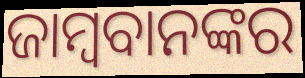
ଜାମ୍ବବାନଙ୍କର